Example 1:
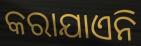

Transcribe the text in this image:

କରାଯାଏନି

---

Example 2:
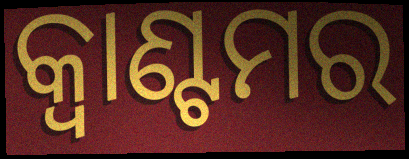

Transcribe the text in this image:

କ୍ୱାଣ୍ଟମର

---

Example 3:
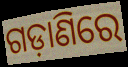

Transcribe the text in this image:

ଗଡ଼ାଣିରେ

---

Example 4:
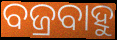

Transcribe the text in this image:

ବଜ୍ରବାହୁ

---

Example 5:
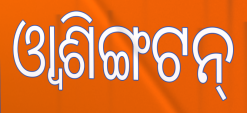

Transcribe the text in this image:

ଓ୍ୱାଶିଙ୍ଗଟନ୍